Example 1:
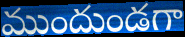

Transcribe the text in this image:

ముందుండగా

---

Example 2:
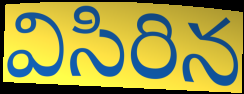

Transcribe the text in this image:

విసిరిన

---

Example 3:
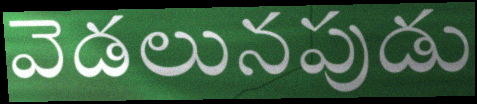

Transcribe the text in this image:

వెడలునపుడు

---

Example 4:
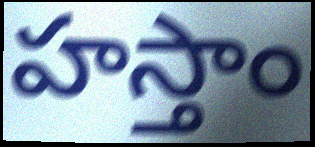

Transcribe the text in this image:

హస్తాం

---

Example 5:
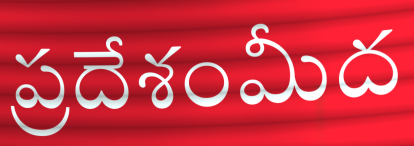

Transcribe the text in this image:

ప్రదేశంమీద